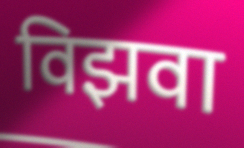
विझवा